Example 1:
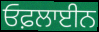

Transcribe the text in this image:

ਓਫ਼ਲਾਈਨ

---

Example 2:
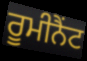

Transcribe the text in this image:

ਰੂਮੀਨੈਂਟ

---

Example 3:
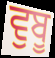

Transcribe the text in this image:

ਵੁਬੂ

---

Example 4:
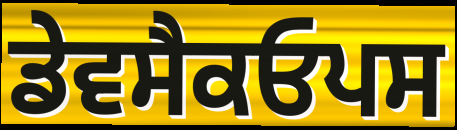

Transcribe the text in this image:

ਡੇਵਸੈਕਓਪਸ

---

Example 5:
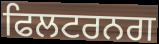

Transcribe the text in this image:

ਫਿਲਟਰਨਗ